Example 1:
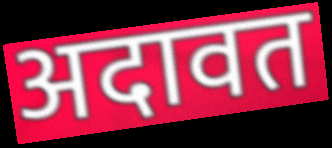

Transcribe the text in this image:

अदावत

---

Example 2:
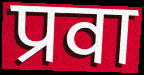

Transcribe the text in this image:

प्रवा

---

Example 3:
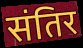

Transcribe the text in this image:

संतिर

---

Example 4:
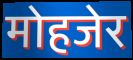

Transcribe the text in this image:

मोहजेर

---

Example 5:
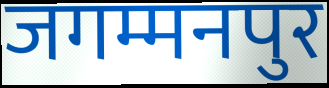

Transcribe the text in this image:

जगम्मनपुर